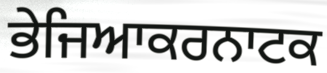
ਭੇਜਿਆਕਰਨਾਟਕ